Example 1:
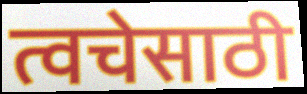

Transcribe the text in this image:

त्वचेसाठी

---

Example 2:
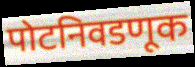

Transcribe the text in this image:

पोटनिवडणूक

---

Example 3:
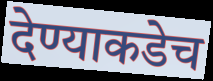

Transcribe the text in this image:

देण्याकडेच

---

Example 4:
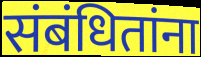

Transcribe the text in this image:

संबंधितांना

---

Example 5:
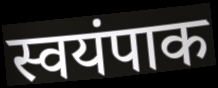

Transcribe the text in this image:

स्वयंपाक